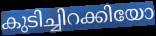
കുടിച്ചിറക്കിയോ